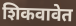
शिकवावेत